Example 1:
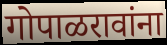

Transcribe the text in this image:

गोपाळरावांना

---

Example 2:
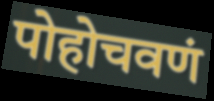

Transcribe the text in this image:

पोहोचवणं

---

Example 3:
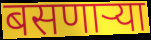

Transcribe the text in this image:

बसणार्‍या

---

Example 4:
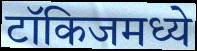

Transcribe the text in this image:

टॉकिजमध्ये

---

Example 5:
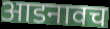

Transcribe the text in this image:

आडनावच